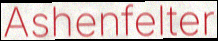
Ashenfelter